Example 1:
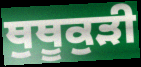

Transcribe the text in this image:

ਥੁਥੂਕੁੜੀ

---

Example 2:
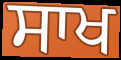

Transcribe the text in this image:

ਸਾਖ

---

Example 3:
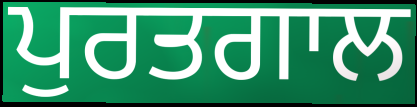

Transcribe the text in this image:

ਪੁਰਤਗਾਲ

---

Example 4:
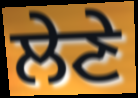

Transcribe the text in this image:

ਲੇਣੇ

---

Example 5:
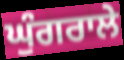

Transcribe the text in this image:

ਘੁੰਗਰਾਲੇ